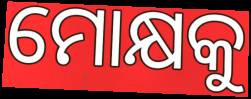
ମୋକ୍ଷକୁ